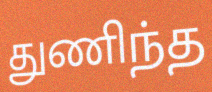
துணிந்த